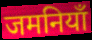
जमनियाँ